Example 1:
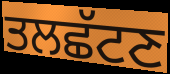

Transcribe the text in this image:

ਤਲਛੱਟਣ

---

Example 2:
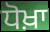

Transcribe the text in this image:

ਧੋਖ਼ਾ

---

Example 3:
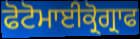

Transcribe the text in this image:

ਫੋਟੋਮਾਈਕ੍ਰੋਗ੍ਰਾਫ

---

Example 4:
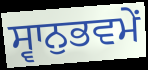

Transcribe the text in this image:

ਸ੍ਵਾਨੁਭਵਮੇਂ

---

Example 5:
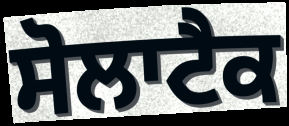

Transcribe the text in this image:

ਸੋਲਾਟੈਕ